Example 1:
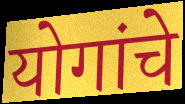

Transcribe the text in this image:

योगांचे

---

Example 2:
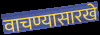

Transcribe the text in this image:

वाचण्यासारखे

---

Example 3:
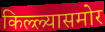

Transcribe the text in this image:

किल्ल्यासमोर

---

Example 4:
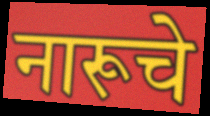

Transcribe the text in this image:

नारूचे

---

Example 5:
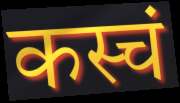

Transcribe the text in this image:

कस्चं